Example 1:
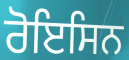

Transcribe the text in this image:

ਰੋਇਸਿਨ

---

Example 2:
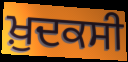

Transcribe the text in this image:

ਖ਼ੁਦਕਸੀ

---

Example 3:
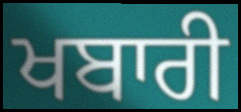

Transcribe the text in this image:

ਖਬਾਰੀ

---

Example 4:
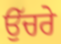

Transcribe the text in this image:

ਉੱਚਰੇ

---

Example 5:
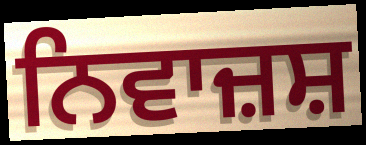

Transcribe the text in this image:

ਨਿਵਾਜ਼ਸ਼